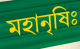
মহানৃষিঃ